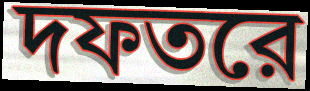
দফতরে